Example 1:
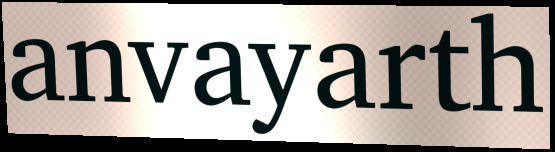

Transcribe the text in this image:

anvayarth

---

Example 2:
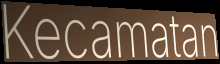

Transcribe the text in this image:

Kecamatan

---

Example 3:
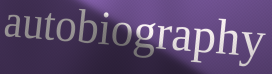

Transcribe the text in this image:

autobiography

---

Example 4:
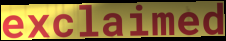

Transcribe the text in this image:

exclaimed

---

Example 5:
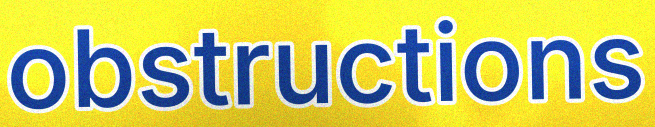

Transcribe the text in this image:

obstructions